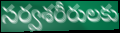
సర్వశరీరులకు